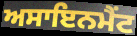
ਅਸਾਇਨਮੈਂਟ